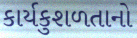
કાર્યકુશળતાનો